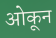
ओकून